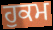
ਹੁਕਮ